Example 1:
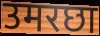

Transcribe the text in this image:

उमरछा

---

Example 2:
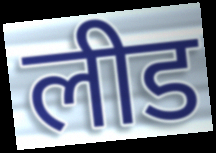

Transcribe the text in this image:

लीड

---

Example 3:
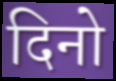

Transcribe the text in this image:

दिनो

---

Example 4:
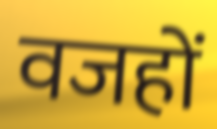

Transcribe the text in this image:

वजहों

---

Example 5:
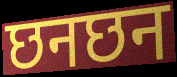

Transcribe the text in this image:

छनछन